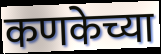
कणकेच्या